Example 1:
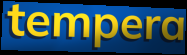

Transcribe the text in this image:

tempera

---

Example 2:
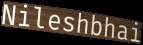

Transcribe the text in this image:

Nileshbhai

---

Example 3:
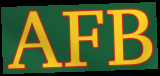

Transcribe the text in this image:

AFB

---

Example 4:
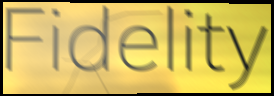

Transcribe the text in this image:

Fidelity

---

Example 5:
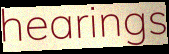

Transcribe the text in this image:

hearings